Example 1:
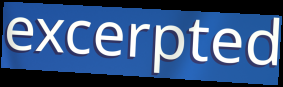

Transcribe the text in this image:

excerpted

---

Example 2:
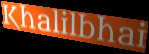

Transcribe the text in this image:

Khalilbhai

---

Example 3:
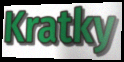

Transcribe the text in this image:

Kratky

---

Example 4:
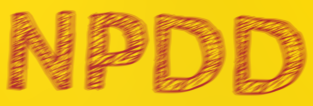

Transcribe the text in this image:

NPDD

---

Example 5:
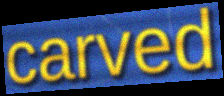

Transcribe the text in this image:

carved